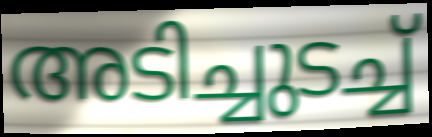
അടിച്ചുടച്ച്